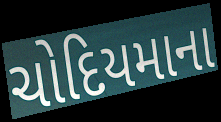
ચોદિયમાના